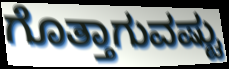
ಗೊತ್ತಾಗುವಷ್ಟು